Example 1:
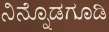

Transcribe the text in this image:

ನಿನ್ನೊಡಗೂಡಿ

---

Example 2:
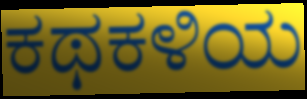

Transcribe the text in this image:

ಕಥಕಳಿಯ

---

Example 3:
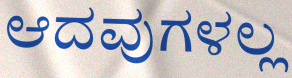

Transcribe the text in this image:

ಆದವುಗಳಲ್ಲ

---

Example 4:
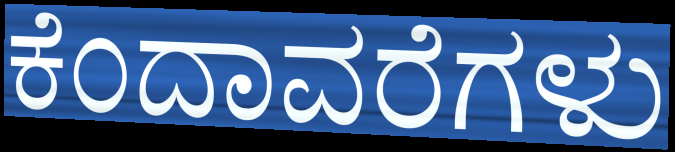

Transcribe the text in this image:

ಕೆಂದಾವರೆಗಳು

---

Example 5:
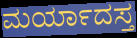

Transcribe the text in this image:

ಮರ್ಯಾದಸ್ತ